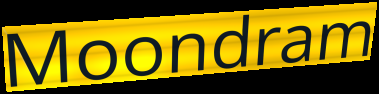
Moondram